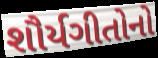
શૌર્યગીતોનો